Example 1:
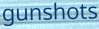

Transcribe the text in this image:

gunshots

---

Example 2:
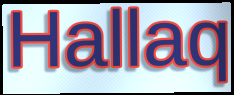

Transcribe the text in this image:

Hallaq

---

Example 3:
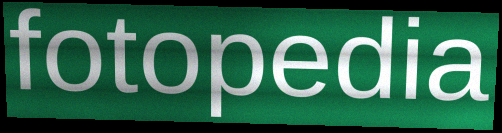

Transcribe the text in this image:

fotopedia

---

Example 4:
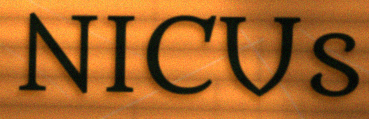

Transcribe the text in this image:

NICUs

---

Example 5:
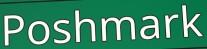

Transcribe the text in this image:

Poshmark